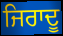
ਜਿਰਾਦੂ